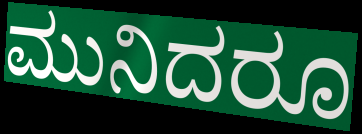
ಮುನಿದರೂ